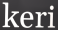
keri